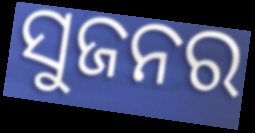
ସୁଜନର